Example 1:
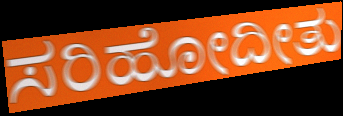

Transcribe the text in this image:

ಸರಿಹೋದೀತು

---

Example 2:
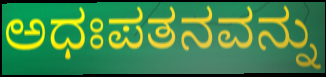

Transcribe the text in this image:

ಅಧಃಪತನವನ್ನು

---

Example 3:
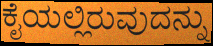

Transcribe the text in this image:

ಕೈಯಲ್ಲಿರುವುದನ್ನು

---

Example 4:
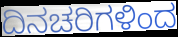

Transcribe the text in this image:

ದಿನಚರಿಗಳಿಂದ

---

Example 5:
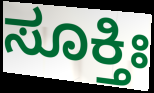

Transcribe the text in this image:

ಸೂಕ್ತಿಃ